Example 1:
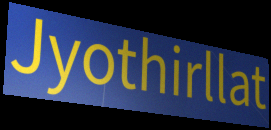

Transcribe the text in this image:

Jyothirllat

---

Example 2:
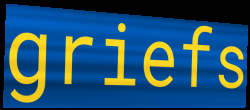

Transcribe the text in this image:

griefs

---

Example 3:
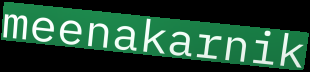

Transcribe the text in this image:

meenakarnik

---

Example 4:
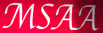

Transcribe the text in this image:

MSAA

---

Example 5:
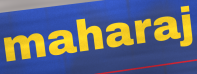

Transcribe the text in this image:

maharaj